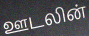
ஊடலின்